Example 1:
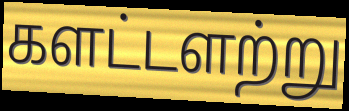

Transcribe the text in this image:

களட்டளற்று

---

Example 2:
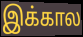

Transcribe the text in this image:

இக்கால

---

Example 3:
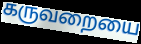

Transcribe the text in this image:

கருவறையை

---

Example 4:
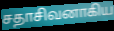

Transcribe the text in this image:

சதாசிவனாகிய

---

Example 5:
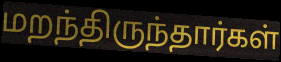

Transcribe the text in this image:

மறந்திருந்தார்கள்